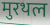
मुरथल